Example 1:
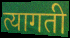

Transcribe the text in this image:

त्यागती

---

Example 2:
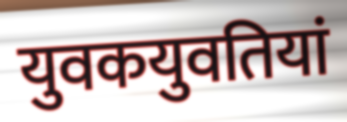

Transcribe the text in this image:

युवकयुवतियां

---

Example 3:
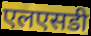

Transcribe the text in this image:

एलएसडी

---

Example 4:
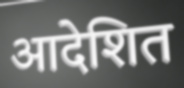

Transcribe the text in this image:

आदेशित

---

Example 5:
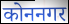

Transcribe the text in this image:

कोननगर